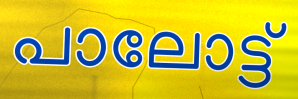
പാലോട്ട്